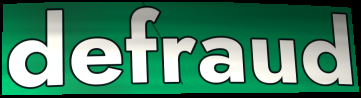
defraud